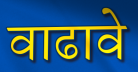
वाढावे